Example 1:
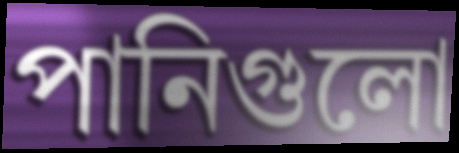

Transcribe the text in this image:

পানিগুলো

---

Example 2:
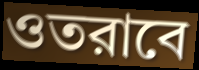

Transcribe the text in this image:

ওতরাবে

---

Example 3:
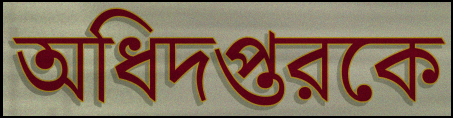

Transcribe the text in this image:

অধিদপ্তরকে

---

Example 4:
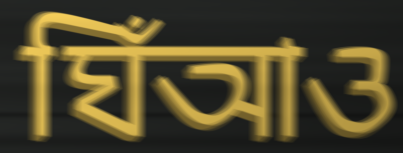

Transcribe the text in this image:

ঘিঁআও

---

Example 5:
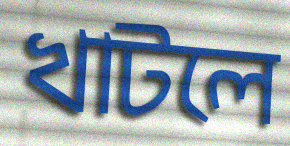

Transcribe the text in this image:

খাটলে